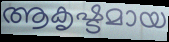
ആകൃഷ്ടമായ